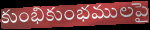
కుంభికుంభములపై